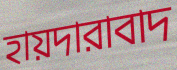
হায়দারাবাদ